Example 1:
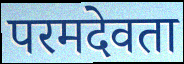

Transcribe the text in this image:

परमदेवता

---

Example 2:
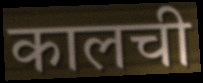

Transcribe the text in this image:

कालची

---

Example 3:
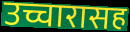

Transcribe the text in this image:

उच्चारासह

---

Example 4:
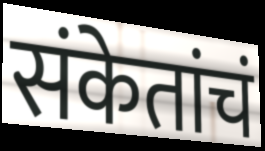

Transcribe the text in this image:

संकेतांचं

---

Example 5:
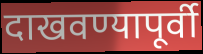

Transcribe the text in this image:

दाखवण्यापूर्वी